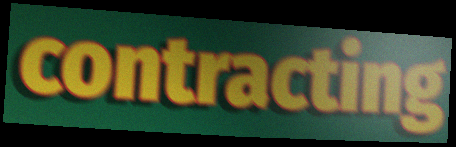
contracting